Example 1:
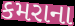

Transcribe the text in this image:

કમરાના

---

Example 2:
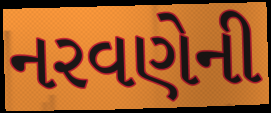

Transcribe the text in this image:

નરવણેની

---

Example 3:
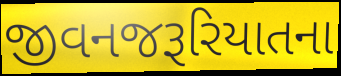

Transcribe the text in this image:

જીવનજરૂરિયાતના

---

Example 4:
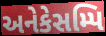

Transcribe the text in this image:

અનેકેસમ્પિ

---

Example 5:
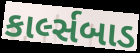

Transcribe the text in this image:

કાર્લ્સબાડ